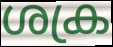
ശക്ര